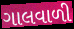
ગાલવાળી